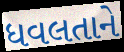
ધવલતાને